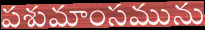
పశుమాంసమును